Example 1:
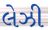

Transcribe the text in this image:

લેઝી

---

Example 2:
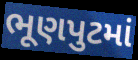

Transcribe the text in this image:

ભૂણપુટમાં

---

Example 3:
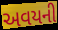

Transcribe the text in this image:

અવયની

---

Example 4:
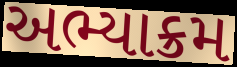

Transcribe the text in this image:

અભ્યાક્રમ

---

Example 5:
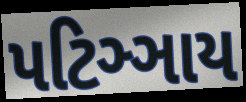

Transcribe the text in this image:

પટિઞ્ઞાય